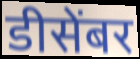
डीसेंबर